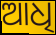
ଆଧି